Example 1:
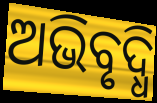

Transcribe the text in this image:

ଅଭିବୃଦ୍ଧି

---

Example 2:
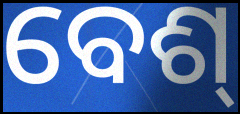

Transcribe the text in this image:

ବେଶ୍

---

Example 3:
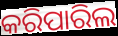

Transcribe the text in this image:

କରିପାରିଲ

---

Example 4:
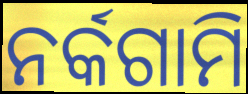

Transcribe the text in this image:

ନର୍କଗାମି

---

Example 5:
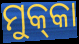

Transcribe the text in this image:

ମୁକ୍‌କା